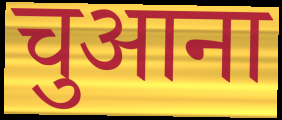
चुआना